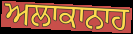
ਅਲਾਕਾਨਾਹ